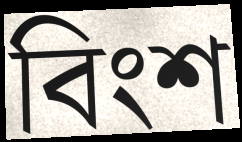
বিংশ